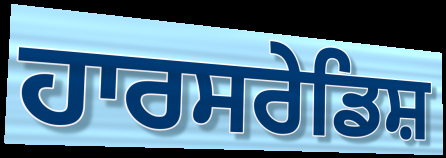
ਹਾਰਸਰੇਡਿਸ਼